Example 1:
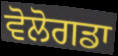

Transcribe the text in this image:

ਵੋਲੋਗਡਾ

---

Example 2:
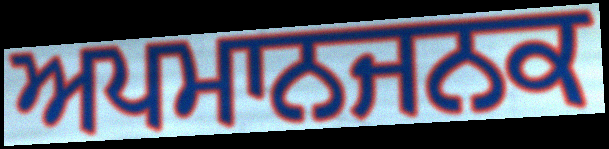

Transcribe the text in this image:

ਅਪਮਾਨਜਨਕ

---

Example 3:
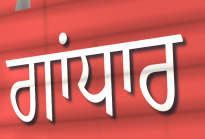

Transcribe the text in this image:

ਗਾਂਧਾਰ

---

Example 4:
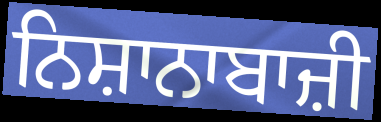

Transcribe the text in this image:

ਨਿਸ਼ਾਨਾਬਾਜ਼ੀ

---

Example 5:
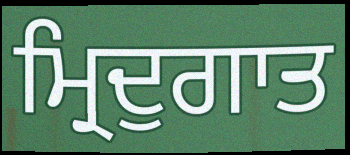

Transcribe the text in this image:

ਮ੍ਰਿਦੁਗਾਤ